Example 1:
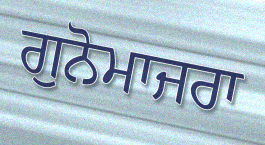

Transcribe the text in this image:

ਗੁਨੋਮਾਜਰਾ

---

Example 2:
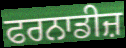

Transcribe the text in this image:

ਫਰਨਾਡੀਜ਼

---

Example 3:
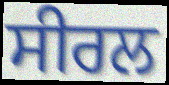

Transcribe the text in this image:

ਸੀਰਲ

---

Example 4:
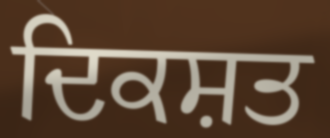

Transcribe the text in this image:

ਦਿਕਸ਼ਤ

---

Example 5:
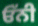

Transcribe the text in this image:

ਓੱਨੀ